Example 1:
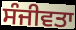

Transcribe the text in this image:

ਸੰਜੀਵਤਾ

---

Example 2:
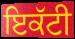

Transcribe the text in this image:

ਇਕੱਟੀ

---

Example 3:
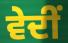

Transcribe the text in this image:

ਵੇਦੀਂ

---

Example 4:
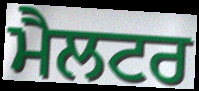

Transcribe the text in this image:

ਮੈਲਟਰ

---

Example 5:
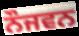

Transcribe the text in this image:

ਨੌਜਵਨ